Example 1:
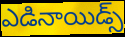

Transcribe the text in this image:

ఎడినాయిడ్స్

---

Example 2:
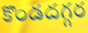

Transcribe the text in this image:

కొండదగ్గర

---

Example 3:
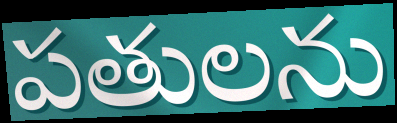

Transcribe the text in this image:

పతులను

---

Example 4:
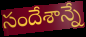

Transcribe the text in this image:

సందేశాన్నే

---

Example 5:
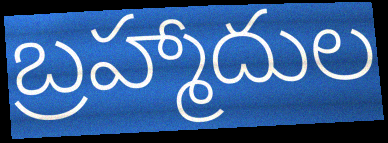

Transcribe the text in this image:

బ్రహ్మాదుల